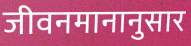
जीवनमानानुसार